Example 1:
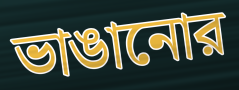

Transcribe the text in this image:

ভাঙানোর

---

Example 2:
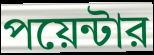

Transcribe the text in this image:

পয়েন্টার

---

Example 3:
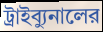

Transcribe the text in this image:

ট্রাইব্যুনালের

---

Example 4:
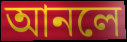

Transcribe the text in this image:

আনলে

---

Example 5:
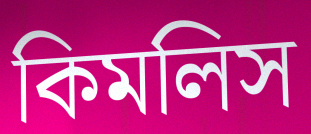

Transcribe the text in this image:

কিমলিস